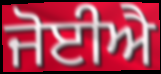
ਜੋਈਐ